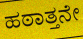
ಹಠಾತ್ತನೇ